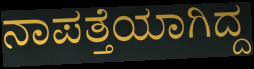
ನಾಪತ್ತೆಯಾಗಿದ್ದ